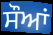
ਸੌਆਂ